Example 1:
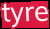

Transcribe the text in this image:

tyre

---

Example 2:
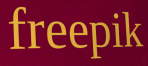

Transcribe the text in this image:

freepik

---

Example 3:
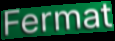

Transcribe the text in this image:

Fermat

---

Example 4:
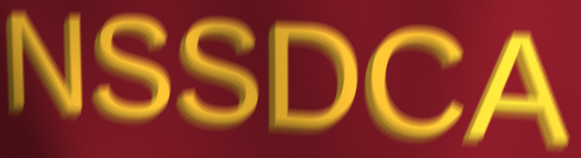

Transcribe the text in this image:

NSSDCA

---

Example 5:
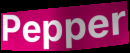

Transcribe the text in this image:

Pepper